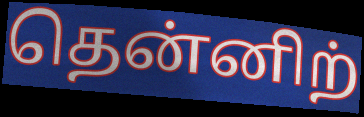
தென்னிற்